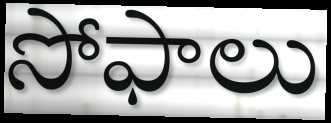
సోఫాలు